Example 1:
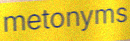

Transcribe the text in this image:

metonyms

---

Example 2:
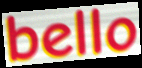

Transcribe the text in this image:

bello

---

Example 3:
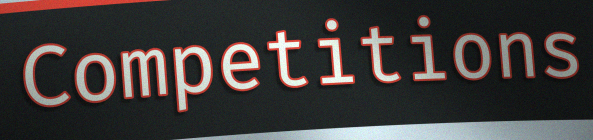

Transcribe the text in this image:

Competitions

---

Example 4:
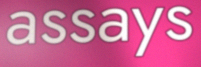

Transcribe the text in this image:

assays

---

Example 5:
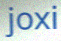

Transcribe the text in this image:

joxi